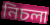
নিচলা